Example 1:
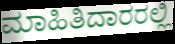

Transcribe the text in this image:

ಮಾಹಿತಿದಾರರಲ್ಲಿ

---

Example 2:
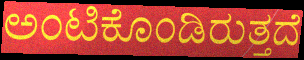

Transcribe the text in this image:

ಅಂಟಿಕೊಂಡಿರುತ್ತದೆ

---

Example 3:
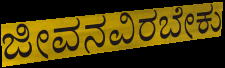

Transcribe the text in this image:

ಜೀವನವಿರಬೇಕು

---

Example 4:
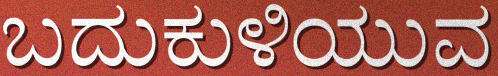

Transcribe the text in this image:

ಬದುಕುಳಿಯುವ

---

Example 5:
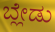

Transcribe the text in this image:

ಬ್ಲೇಡು